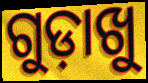
ଗୁଡ଼ାଖୁ